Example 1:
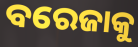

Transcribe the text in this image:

ବରେଜାକୁ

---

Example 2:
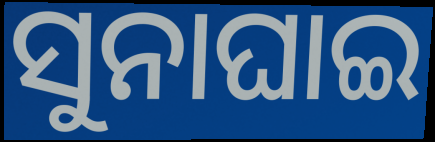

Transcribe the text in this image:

ସୁନାଘାଇ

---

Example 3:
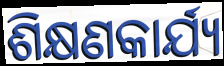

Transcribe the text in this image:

ଶିକ୍ଷଣକାର୍ଯ୍ୟ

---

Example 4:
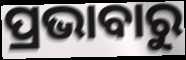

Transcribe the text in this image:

ପ୍ରଭାବାରୁ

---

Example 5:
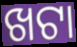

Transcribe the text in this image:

ଖଟା